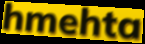
hmehta